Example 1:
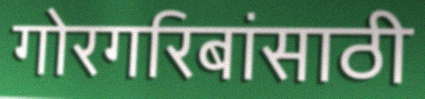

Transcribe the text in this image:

गोरगरिबांसाठी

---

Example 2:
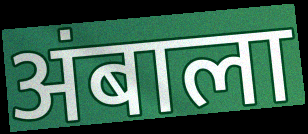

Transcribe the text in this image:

अंबाला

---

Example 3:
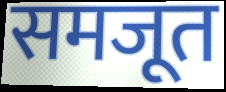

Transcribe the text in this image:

समजूत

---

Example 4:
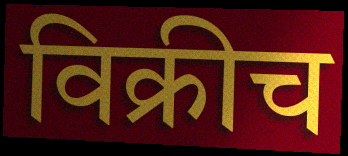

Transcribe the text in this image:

विक्रीच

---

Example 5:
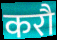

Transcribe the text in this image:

करौ